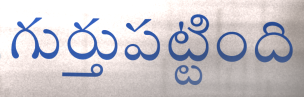
గుర్తుపట్టింది